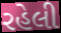
રહેલી